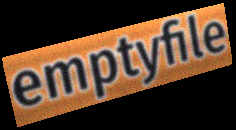
emptyfile